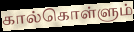
கால்கொள்ளும்